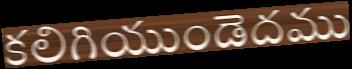
కలిగియుండెదము